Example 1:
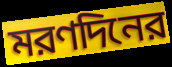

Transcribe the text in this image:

মরণদিনের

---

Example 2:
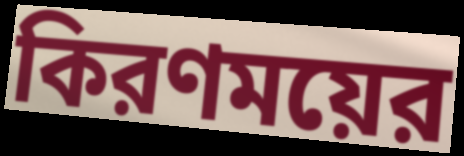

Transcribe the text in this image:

কিরণময়ের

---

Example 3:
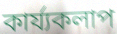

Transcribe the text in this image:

কার্য্যকলাপ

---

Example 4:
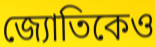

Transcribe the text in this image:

জ্যোতিকেও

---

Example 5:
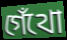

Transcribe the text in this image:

গেঁথো